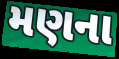
મણના